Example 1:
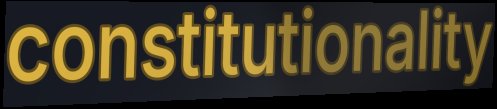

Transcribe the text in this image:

constitutionality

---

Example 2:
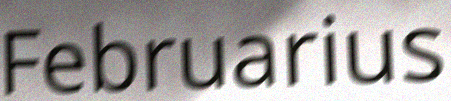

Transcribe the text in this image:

Februarius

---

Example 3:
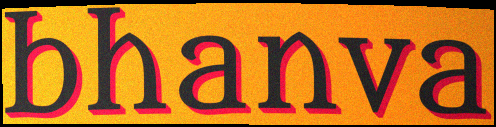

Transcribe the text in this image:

bhanva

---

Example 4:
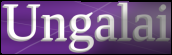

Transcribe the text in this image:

Ungalai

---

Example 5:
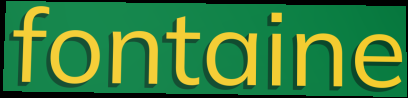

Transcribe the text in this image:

fontaine